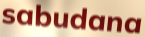
sabudana